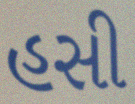
હસી